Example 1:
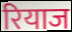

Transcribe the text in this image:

रियाज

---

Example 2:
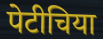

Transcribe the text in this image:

पेटीचिया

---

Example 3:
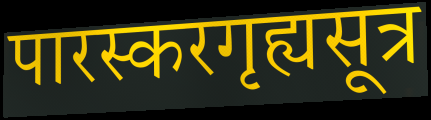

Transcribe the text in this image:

पारस्करगृह्यसूत्र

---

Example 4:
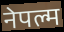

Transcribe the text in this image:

नेपल्म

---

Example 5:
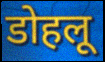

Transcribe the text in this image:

डोहलू